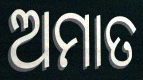
ଅମାତ